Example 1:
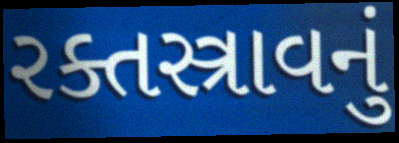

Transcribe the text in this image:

રક્તસ્ત્રાવનું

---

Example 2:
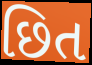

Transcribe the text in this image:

છિત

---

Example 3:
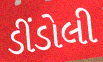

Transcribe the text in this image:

ડીંડોલી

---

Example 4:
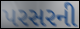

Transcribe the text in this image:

પરસરની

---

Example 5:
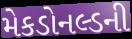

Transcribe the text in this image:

મેકડોનલ્ડની